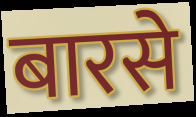
बारसे